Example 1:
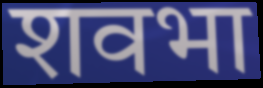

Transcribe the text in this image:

शवभा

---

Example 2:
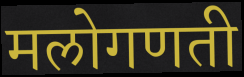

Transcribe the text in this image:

मलोगणती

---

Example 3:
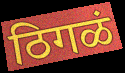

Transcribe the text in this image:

ठिगळं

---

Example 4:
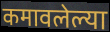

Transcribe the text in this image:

कमावलेल्या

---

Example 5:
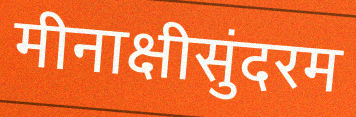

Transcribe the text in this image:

मीनाक्षीसुंदरम